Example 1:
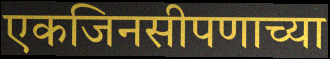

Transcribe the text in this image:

एकजिनसीपणाच्या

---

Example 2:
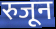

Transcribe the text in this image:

रुजून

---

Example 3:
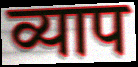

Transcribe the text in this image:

व्याप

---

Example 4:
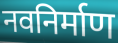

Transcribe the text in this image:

नवनिर्माण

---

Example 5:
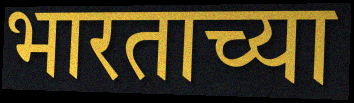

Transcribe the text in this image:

भारताच्या